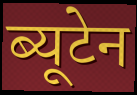
ब्यूटेन